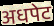
अधपेट